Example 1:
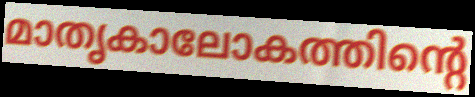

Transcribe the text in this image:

മാതൃകാലോകത്തിന്റെ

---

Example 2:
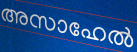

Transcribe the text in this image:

അസാഹേൽ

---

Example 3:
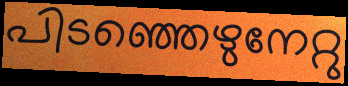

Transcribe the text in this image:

പിടഞ്ഞെഴുനേറ്റു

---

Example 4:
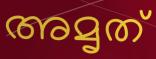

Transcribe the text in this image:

അമൃത്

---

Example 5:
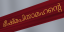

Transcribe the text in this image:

ഭീഷ്മപിതാമഹന്റെ